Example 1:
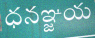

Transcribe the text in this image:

ధనఞ్జయ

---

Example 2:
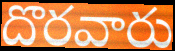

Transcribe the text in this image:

దొరవారు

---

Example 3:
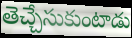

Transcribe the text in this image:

తెచ్చేసుకుంటాడు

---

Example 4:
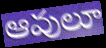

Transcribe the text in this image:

ఆవులూ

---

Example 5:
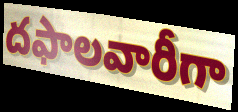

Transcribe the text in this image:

దఫాలవారీగా